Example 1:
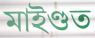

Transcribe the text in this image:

মাইণ্ডত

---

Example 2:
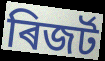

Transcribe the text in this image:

ৰিজৰ্ট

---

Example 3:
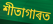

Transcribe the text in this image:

শীতাগাৰত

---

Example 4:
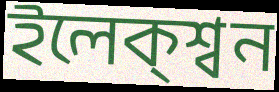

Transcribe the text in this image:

ইলেক্‌শ্বন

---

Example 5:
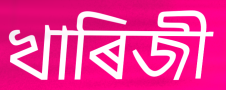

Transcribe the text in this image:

খাৰিজী